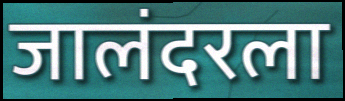
जालंदरला